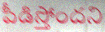
పీడిస్తోందని